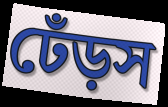
ঢেঁড়স